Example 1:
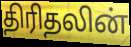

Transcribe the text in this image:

திரிதலின்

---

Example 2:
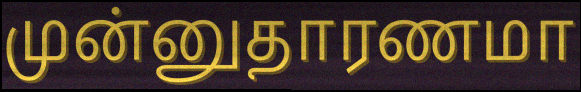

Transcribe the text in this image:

முன்னுதாரணமா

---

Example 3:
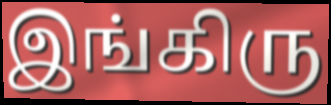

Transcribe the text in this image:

இங்கிரு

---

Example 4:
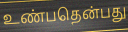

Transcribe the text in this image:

உண்பதென்பது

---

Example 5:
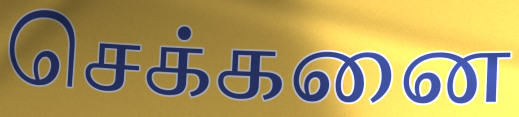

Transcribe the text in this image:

செக்கனை